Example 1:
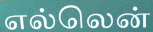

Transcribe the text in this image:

எல்லென்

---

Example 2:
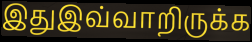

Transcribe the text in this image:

இதுஇவ்வாறிருக்க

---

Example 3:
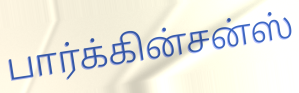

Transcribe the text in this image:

பார்க்கின்சன்ஸ்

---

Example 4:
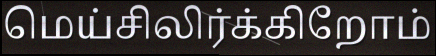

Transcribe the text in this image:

மெய்சிலிர்க்கிறோம்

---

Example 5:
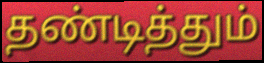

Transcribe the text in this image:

தண்டித்தும்